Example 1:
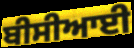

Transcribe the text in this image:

ਬੀਸੀਆਈ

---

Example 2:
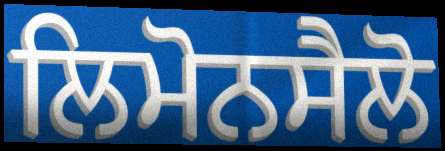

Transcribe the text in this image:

ਲਿਮੋਨਸੈਲੋ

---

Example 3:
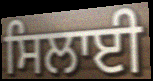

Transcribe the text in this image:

ਸਿਲਾਈ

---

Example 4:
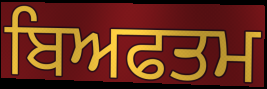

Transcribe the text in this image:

ਬਿਅਫਤਮ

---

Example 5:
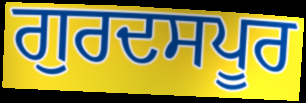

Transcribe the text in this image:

ਗੁਰਦਸਪੂਰ